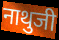
नाथुजी